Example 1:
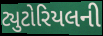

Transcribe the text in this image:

ટ્યુટોરિયલની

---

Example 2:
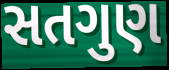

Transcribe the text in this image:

સતગુણ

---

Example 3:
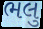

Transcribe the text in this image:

ભલુ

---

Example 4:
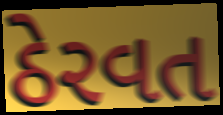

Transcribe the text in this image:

ઠેરવત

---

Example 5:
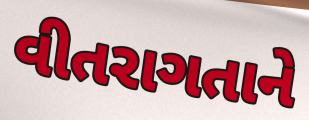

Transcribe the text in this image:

વીતરાગતાને